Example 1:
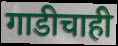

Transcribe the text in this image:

गाडीचाही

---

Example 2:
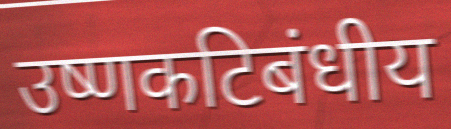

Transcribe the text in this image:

उष्णकटिबंधीय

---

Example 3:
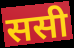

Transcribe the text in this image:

ससी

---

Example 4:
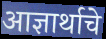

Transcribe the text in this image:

आज्ञार्थाचे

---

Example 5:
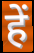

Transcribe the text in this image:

हें